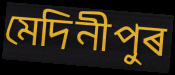
মেদিনীপুৰ